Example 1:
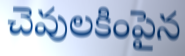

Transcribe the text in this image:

చెవులకింపైన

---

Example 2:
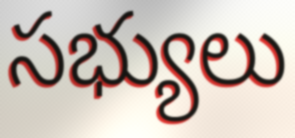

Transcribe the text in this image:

సభ్యులు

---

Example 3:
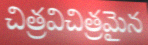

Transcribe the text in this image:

చిత్రవిచిత్రమైన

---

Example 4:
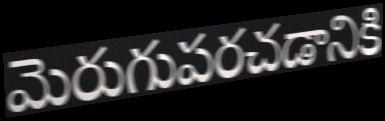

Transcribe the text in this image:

మెరుగుపరచడానికి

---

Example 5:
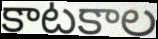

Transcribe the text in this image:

కాటకాల